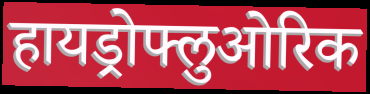
हायड्रोफ्लुओरिक